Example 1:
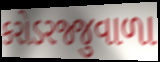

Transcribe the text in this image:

કરોડરજ્જુવાળા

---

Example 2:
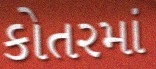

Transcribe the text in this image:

કોતરમાં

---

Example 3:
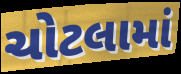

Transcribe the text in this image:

ચોટલામાં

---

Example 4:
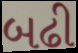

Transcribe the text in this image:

બઢી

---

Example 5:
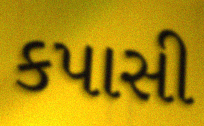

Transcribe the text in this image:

કપાસી